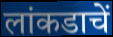
लांकडाचें